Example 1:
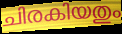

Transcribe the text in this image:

ചിരകിയതും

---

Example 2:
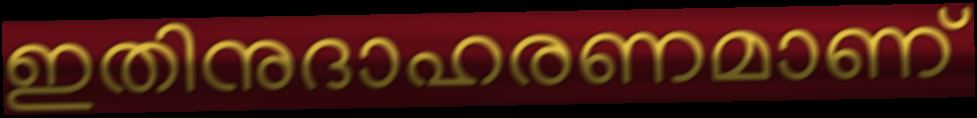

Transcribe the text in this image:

ഇതിനുദാഹരണമാണ്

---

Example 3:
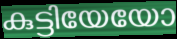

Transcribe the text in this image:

കുട്ടിയേയോ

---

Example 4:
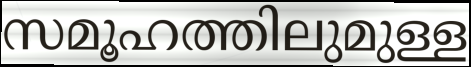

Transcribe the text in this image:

സമൂഹത്തിലുമുള്ള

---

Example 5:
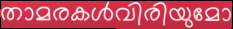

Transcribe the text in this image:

താമരകൾവിരിയുമോ